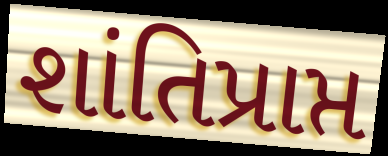
શાંતિપ્રાપ્ત